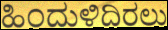
ಹಿಂದುಳಿದಿರಲು